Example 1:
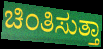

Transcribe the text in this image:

ಚಿಂತಿಸುತ್ತಾ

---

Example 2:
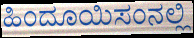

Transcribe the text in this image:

ಹಿಂದೂಯಿಸಂನಲ್ಲಿ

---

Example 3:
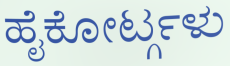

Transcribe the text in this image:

ಹೈಕೋರ್ಟ್ಗಳು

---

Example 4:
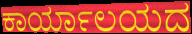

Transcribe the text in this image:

ಕಾರ್ಯಾಲಯದ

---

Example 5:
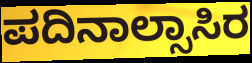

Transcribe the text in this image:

ಪದಿನಾಲ್ಸಾಸಿರ